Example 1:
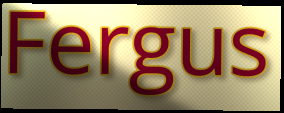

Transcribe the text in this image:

Fergus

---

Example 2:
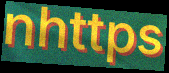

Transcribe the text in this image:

nhttps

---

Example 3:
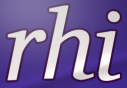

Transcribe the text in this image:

rhi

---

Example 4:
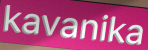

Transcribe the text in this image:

kavanika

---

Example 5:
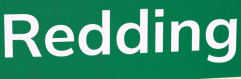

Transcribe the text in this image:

Redding